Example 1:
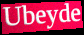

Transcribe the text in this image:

Ubeyde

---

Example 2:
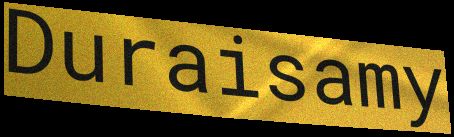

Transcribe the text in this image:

Duraisamy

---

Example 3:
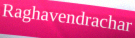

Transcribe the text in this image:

Raghavendrachar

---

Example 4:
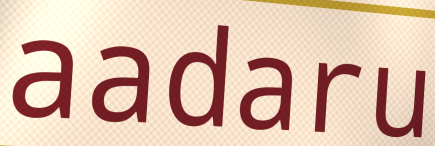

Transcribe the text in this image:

aadaru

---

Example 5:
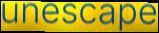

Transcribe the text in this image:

unescape